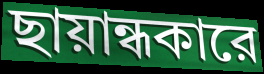
ছায়ান্ধকারে